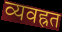
व्यवह्रत